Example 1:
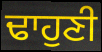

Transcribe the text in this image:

ਢਾਹੁਣੀ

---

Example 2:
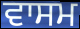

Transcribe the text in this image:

ਵਾਸਮ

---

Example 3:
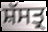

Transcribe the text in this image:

ਸ਼ੱਸਤ੍ਰ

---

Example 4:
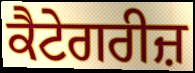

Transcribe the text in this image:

ਕੈਟੇਗਰੀਜ਼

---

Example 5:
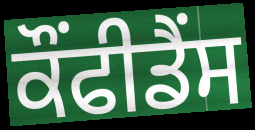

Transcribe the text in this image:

ਕੌਂਫੀਡੈਂਸ